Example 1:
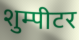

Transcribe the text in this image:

शुम्पीटर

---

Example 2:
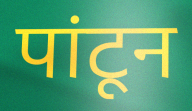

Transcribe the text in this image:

पांटून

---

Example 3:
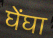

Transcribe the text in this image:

घेंघा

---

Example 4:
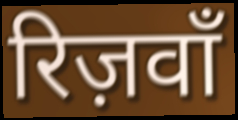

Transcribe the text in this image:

रिज़वाँ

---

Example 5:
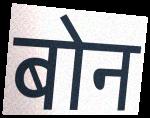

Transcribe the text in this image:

बोन